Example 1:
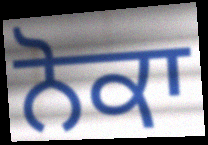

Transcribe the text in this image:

ਨੋਕਾ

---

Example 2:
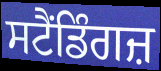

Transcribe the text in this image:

ਸਟੈਂਡਿੰਗਜ਼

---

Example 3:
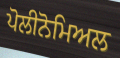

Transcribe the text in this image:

ਪੋਲੀਨੋਮਿਅਲ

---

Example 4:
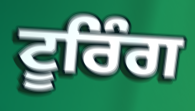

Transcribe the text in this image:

ਟੂਰਿੰਗ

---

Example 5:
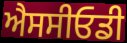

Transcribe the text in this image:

ਐਸਸੀਓਡੀ